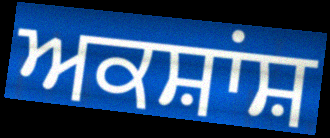
ਅਕਸ਼ਾਂਸ਼